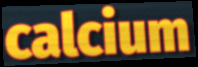
calcium